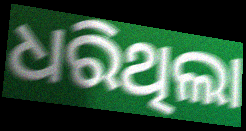
ଧରିଥିଲା